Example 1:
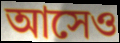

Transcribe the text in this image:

আসেও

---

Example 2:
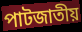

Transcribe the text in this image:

পাটজাতীয়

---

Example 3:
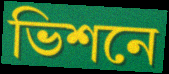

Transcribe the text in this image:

ভিশনে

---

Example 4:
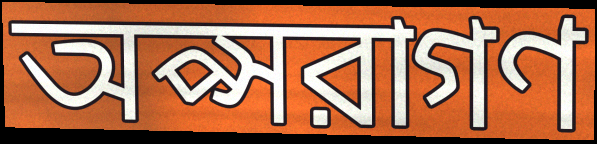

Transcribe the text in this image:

অপ্সরাগণ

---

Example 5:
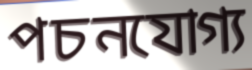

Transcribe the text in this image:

পচনযোগ্য